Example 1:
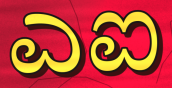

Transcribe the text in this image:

ಎಐ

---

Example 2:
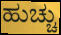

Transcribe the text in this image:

ಹುಚ್ಚು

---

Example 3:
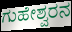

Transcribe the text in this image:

ಗುಹೇಶ್ವರನ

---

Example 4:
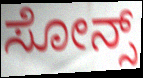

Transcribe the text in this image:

ಸೋನ್ಸ್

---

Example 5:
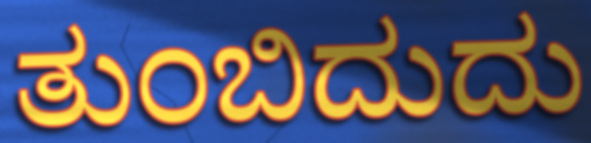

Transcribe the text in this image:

ತುಂಬಿದುದು